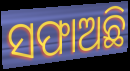
ସଫାଅଛି